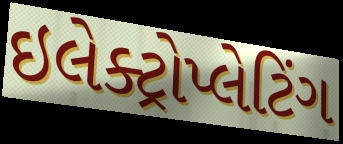
ઇલેક્ટ્રોપ્લેટિંગ